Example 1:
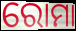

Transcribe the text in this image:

ରୋମା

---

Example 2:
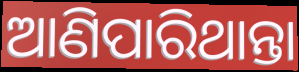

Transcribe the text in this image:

ଆଣିପାରିଥାନ୍ତା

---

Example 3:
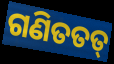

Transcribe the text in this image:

ଗଣିତତତ୍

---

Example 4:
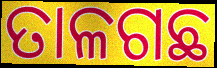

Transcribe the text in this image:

ତାଳଗଛ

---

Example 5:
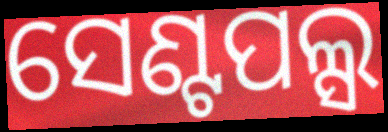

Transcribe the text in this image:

ସେଣ୍ଟପଲ୍ସ